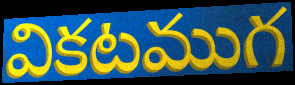
వికటముగ